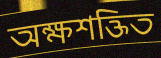
অক্ষশক্তিত